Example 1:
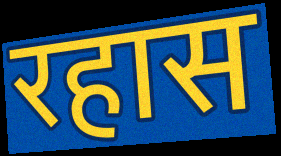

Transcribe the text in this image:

रहास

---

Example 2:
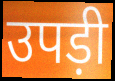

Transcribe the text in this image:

उपड़ी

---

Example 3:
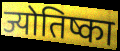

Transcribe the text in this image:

ज्योतिष्का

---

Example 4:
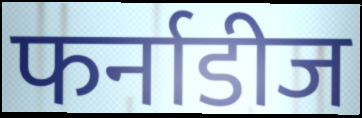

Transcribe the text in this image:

फर्नाडीज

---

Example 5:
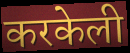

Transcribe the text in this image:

करकेली